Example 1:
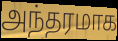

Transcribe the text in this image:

அந்தரமாக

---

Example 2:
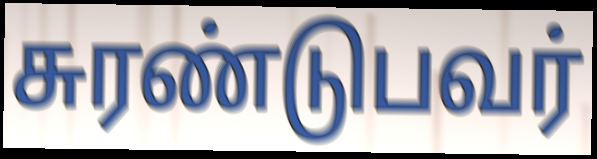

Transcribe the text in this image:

சுரண்டுபவர்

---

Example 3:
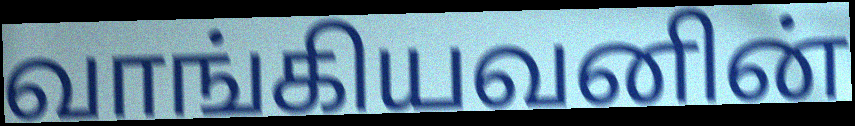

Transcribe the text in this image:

வாங்கியவனின்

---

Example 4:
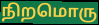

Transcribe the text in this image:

நிறமொரு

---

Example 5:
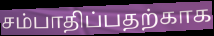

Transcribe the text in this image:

சம்பாதிப்பதற்காக